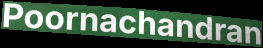
Poornachandran